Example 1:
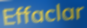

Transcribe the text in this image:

Effaclar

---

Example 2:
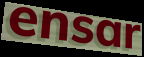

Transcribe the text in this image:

ensar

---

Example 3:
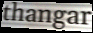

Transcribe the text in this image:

thangar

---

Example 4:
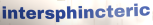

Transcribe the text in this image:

intersphincteric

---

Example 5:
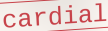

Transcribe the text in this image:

cardial